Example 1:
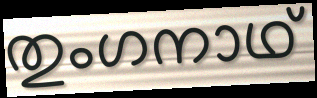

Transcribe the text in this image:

തുംഗനാഥ്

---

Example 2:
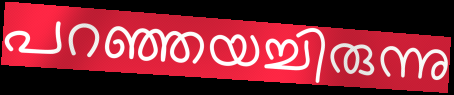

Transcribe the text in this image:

പറഞ്ഞയച്ചിരുന്നു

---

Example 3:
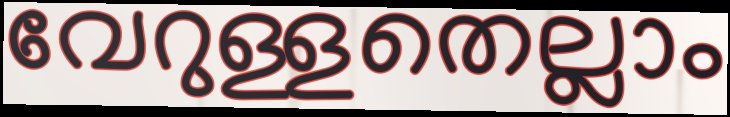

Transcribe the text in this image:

വേറുള്ളതെല്ലാം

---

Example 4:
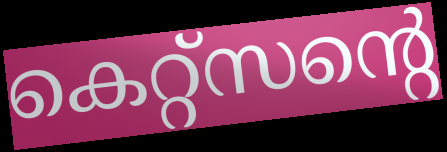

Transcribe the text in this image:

കെറ്റ്സന്റെ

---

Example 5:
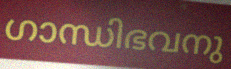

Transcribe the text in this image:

ഗാന്ധിഭവനു